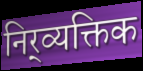
निर्व्यक्तिक